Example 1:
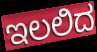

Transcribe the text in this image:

ಇಲಲಿದ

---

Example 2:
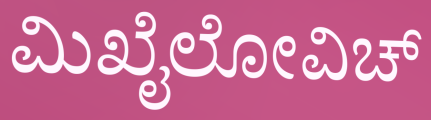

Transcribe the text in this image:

ಮಿಖೈಲೋವಿಚ್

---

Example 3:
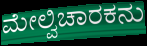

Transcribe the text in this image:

ಮೇಲ್ವಿಚಾರಕನು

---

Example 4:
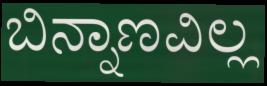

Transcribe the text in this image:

ಬಿನ್ನಾಣವಿಲ್ಲ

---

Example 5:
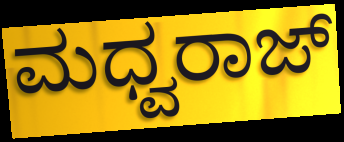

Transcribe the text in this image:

ಮಧ್ವರಾಜ್